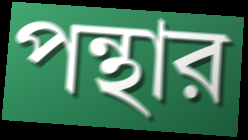
পন্থার